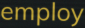
employ